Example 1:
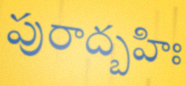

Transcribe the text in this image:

పురాద్బహిః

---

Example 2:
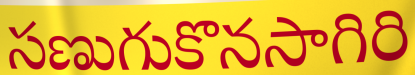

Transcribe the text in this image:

సణుగుకొనసాగిరి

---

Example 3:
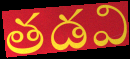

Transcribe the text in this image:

తడవి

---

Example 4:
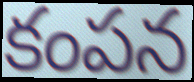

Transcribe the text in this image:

కంపన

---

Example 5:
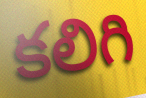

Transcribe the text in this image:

కలిగి